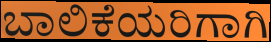
ಬಾಲಿಕೆಯರಿಗಾಗಿ